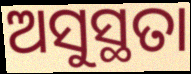
ଅସୁସ୍ଥତା